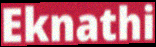
Eknathi